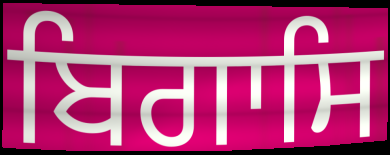
ਬਿਗਾਸਿ